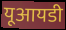
यूआयडी